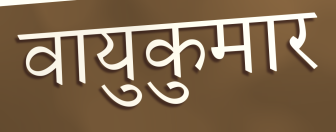
वायुकुमार